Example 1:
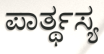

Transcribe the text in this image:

ಪಾರ್ತ್ಥಸ್ಯ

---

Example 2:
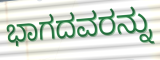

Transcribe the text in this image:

ಭಾಗದವರನ್ನು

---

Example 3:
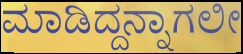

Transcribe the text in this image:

ಮಾಡಿದ್ದನ್ನಾಗಲೀ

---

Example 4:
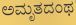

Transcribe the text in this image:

ಅಮೃತದಂಥ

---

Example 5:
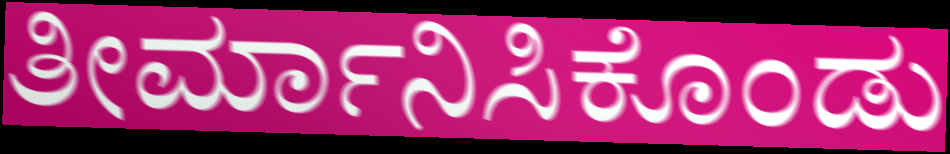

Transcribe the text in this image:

ತೀರ್ಮಾನಿಸಿಕೊಂಡು